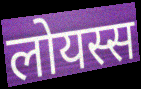
लोयस्स